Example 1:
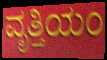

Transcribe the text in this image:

ವೃತ್ತಿಯಂ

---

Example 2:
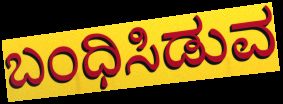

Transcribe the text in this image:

ಬಂಧಿಸಿಡುವ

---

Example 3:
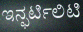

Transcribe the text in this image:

ಇನ್ಫರ್ಟಿಲಿಟಿ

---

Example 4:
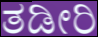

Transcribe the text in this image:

ತಡೀರಿ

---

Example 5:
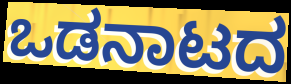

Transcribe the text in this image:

ಒಡನಾಟದ